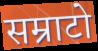
सम्राटो